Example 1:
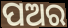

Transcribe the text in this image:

ପଅର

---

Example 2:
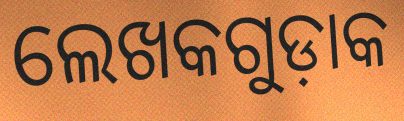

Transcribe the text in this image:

ଲେଖକଗୁଡ଼ାକ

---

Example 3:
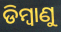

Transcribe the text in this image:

ଡିମ୍ବାଣୁ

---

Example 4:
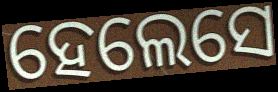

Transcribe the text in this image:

ହେଲେସେ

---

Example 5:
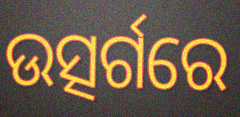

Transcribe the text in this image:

ଉତ୍ସର୍ଗରେ